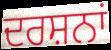
ਦਰਸ਼ਨਾਂ